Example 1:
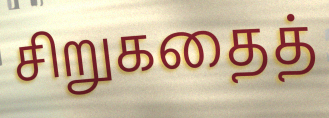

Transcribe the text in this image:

சிறுகதைத்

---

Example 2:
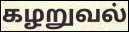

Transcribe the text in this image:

கழறுவல்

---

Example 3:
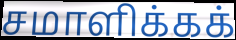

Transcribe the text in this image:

சமாளிக்கக்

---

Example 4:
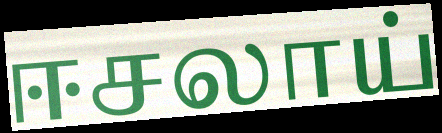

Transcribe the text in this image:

ஈசலாய்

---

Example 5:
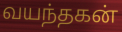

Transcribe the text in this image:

வயந்தகன்